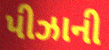
પીઝાની